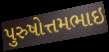
પુરુષોત્તમભાઇ